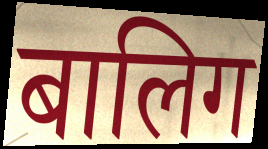
बालिग